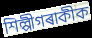
শিল্পীগৰাকীক